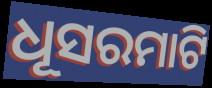
ଧୂସରମାଟି